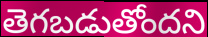
తెగబడుతోందని